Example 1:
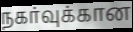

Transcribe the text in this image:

நகர்வுக்கான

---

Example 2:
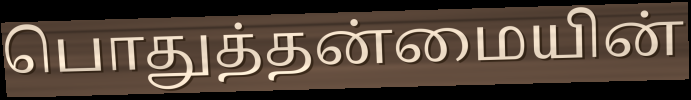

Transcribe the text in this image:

பொதுத்தன்மையின்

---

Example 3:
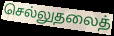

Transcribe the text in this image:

செல்லுதலைத்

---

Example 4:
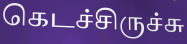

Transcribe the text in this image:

கெடச்சிருச்சு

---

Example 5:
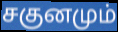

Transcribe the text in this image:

சகுனமும்